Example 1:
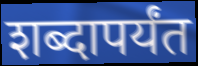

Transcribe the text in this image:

शब्दापर्यंत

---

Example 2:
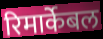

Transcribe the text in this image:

रिमार्केबल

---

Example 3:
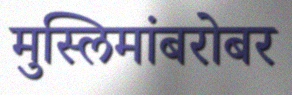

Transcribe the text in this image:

मुस्लिमांबरोबर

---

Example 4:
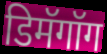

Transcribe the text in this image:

डिमॅगॉग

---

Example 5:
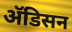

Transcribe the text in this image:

ॲडिसन